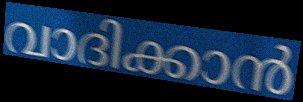
വാദിക്കാൻ